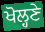
ਖੋਲ੍ਹਣੇ